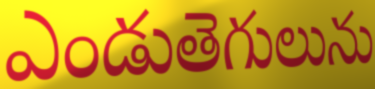
ఎండుతెగులును